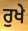
ਰੁਖੇ